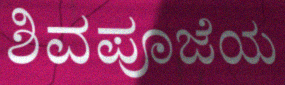
ಶಿವಪೂಜೆಯ